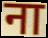
ना